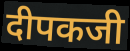
दीपकजी